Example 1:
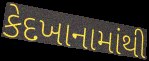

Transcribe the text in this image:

કેદખાનામાંથી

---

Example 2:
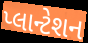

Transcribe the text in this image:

પ્લાન્ટેશન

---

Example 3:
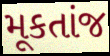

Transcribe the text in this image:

મૂકતાંજ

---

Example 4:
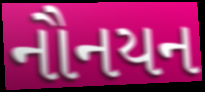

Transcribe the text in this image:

નૌનયન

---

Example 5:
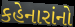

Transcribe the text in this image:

કહેનારાંનો